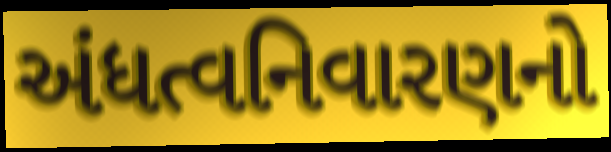
અંધત્વનિવારણનો